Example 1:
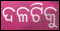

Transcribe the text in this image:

ଦଳଟିକୁ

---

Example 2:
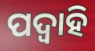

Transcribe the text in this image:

ପଦ୍ଵାହି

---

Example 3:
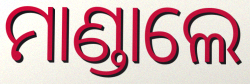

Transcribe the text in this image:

ମାଣ୍ଡାଲେ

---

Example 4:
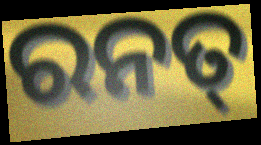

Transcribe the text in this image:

ରନତ୍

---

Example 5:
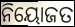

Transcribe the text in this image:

ନିୟୋଜତ